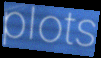
plots